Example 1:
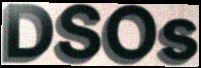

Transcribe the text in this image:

DSOs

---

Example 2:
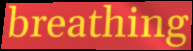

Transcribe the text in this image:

breathing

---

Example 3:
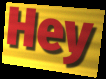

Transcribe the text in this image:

Hey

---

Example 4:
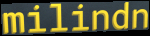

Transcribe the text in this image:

milindn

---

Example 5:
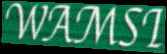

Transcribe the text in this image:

WAMSI